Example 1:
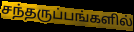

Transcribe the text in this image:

சந்தருப்பங்களில்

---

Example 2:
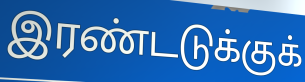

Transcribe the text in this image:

இரண்டடுக்குக்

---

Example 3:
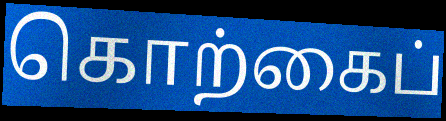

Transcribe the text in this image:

கொற்கைப்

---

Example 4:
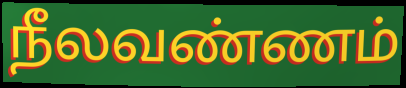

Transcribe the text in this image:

நீலவண்ணம்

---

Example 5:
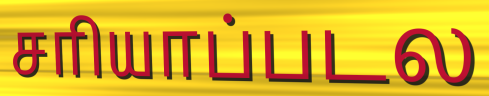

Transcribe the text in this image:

சரியாப்படல